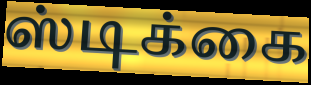
ஸ்டிக்கை